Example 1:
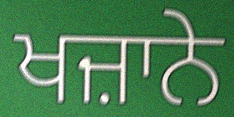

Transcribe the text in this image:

ਖਜ਼ਾਨੇ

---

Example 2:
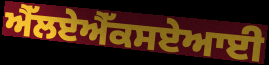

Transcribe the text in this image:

ਐੱਲਏਐੱਕਸਏਆਈ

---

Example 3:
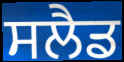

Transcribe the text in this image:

ਸਲੈਡ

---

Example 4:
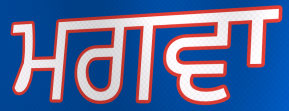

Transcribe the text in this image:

ਮਗਵਾ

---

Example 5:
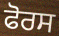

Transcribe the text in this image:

ਫੋਰਸ